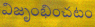
విజృంభించటం